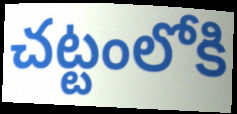
చట్టంలోకి